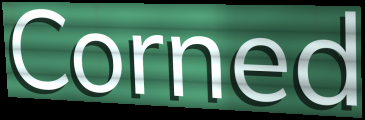
Corned